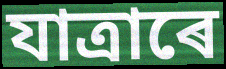
যাত্ৰাৰে